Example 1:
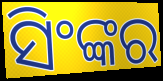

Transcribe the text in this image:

ସିଂଙ୍କର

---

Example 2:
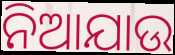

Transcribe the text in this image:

ନିଆଯାଉ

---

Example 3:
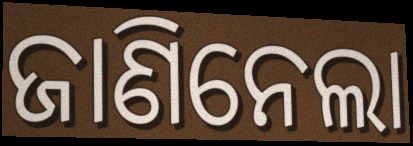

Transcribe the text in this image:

ଜାଣିନେଲା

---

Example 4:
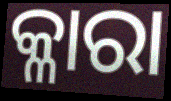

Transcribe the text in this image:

କ୍ଳାରା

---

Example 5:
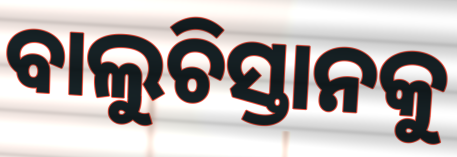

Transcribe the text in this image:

ବାଲୁଚିସ୍ତାନକୁ